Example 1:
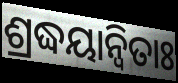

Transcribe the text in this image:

ଶ୍ରଦ୍ଧୟାନ୍ୱିତାଃ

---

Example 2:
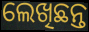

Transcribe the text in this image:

ଲେଖିଛନ୍ତ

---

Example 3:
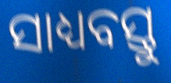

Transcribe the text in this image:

ସାଧ୍ୟବସ୍ତୁ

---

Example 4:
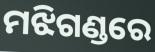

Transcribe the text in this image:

ମଝିଗଣ୍ଡରେ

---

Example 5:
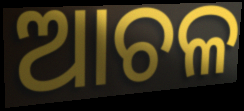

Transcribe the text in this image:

ଆଚଳ